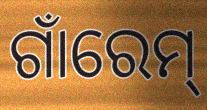
ଗାଁରେମ୍